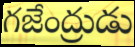
గజేంద్రుడు